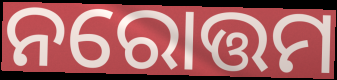
ନରୋତ୍ତମ